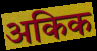
अकिक